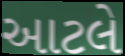
આટલે